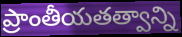
ప్రాంతీయతత్వాన్ని